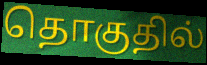
தொகுதில்